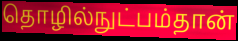
தொழில்நுட்பம்தான்